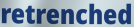
retrenched